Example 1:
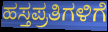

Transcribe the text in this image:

ಹಸ್ತಪ್ರತಿಗಳಿಗೆ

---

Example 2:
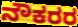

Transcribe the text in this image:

ನೌಕರರ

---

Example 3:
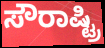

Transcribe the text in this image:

ಸೌರಾಷ್ಟ್ರಿ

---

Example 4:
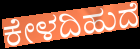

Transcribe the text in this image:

ಕೇಳದಿಹುದೆ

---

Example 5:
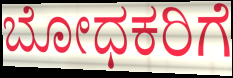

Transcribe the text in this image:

ಬೋಧಕರಿಗೆ